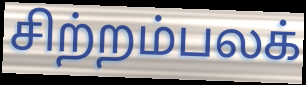
சிற்றம்பலக்